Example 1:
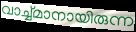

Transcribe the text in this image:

വാച്ച്മാനായിരുന്ന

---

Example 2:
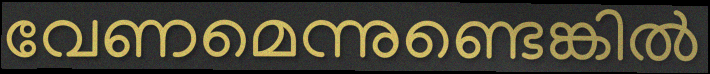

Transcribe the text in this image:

വേണമെന്നുണ്ടെങ്കിൽ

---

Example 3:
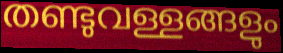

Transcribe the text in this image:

തണ്ടുവള്ളങ്ങളും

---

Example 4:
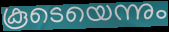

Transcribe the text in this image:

കൂടെയെന്നും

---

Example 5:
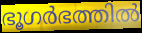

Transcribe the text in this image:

ഭൂഗർഭത്തിൽ